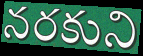
నరకుని